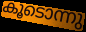
കൂടൊന്നു